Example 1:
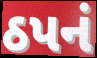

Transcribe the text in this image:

ઠપનં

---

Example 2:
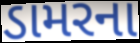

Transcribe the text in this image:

ડામરના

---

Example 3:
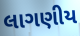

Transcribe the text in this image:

લાગણીય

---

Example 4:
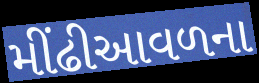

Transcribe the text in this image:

મીંઢીઆવળના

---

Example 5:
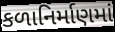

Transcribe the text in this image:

કળાનિર્માણમાં